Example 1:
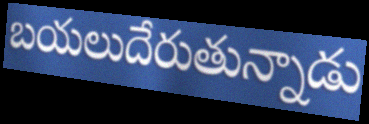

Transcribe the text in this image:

బయలుదేరుతున్నాడు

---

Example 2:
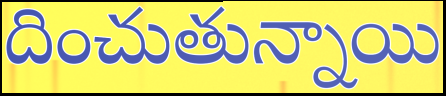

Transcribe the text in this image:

దించుతున్నాయి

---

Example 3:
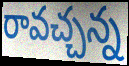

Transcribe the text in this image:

రావచ్చన్న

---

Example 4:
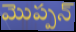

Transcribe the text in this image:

మొప్పన్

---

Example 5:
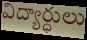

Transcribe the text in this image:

విద్యార్ధులు